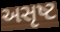
અસૃષ્ટ